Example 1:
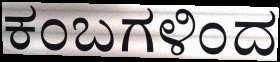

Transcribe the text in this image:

ಕಂಬಗಳಿಂದ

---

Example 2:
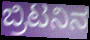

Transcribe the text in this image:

ಬ್ರಿಟನಿನ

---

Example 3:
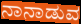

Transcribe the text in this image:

ನಾನಾಡುವ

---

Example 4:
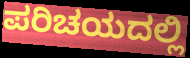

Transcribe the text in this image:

ಪರಿಚಯದಲ್ಲಿ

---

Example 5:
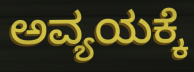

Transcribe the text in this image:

ಅವ್ಯಯಕ್ಕೆ